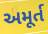
અમૂર્ત